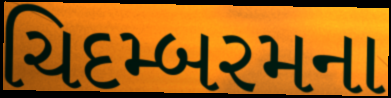
ચિદમ્બરમના